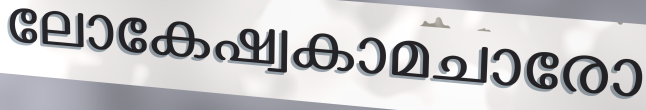
ലോകേഷ്വകാമചാരോ